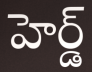
హెర్డ్